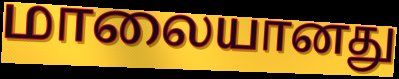
மாலையானது